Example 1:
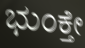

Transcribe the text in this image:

ಭುಂಕ್ತೇ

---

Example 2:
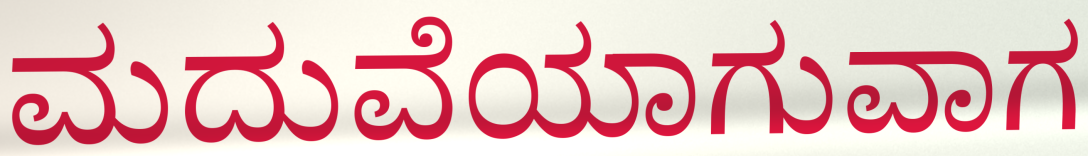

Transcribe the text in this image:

ಮದುವೆಯಾಗುವಾಗ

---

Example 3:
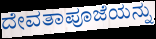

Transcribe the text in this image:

ದೇವತಾಪೂಜೆಯನ್ನು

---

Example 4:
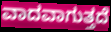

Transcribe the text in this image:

ವಾದವಾಗುತ್ತದೆ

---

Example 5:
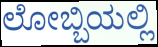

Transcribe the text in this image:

ಲೋಬ್ಬಿಯಲ್ಲಿ